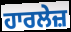
ਹਾਰਲੇਜ਼